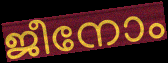
ജീനോം